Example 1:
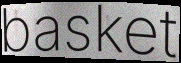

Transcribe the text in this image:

basket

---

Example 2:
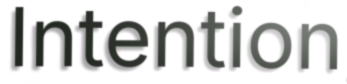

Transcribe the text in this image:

Intention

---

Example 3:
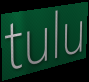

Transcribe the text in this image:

tulu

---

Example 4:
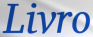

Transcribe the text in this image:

Livro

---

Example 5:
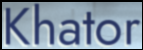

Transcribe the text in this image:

Khator